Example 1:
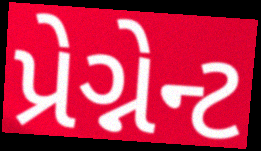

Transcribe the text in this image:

પ્રેગ્નેન્ટ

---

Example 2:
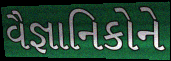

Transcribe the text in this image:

વૈજ્ઞાનિકોને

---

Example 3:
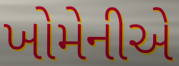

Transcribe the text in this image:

ખોમેનીએ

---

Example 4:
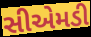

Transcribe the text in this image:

સીએમડી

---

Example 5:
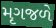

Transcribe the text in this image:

મૃગજળે